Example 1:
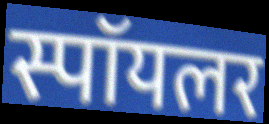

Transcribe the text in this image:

स्पॉयलर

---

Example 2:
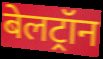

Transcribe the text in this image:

बेलट्रॉन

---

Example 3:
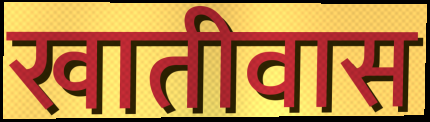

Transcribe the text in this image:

खातीवास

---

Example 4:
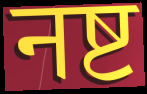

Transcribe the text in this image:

नष्ट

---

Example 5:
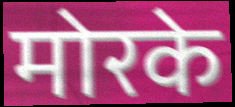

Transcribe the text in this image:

मोरके